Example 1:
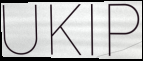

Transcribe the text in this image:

UKIP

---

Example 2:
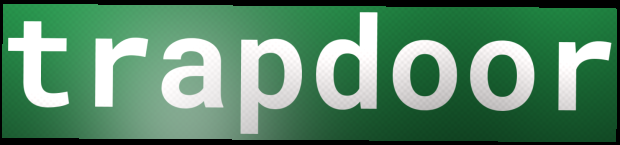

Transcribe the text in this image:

trapdoor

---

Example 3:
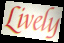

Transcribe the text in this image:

Lively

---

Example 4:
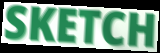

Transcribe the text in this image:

SKETCH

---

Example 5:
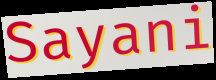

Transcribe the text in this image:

Sayani